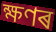
ক্ষণৰ